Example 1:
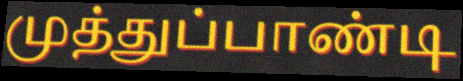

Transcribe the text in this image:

முத்துப்பாண்டி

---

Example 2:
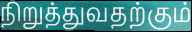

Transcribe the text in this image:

நிறுத்துவதற்கும்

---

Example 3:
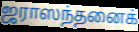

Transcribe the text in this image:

ஜராஸந்தனைக்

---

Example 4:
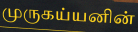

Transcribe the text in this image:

முருகய்யனின்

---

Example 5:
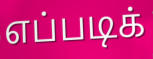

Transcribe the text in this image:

எப்படிக்